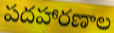
పదహారణాల